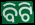
ବିଟି